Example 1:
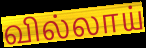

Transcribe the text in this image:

வில்லாய்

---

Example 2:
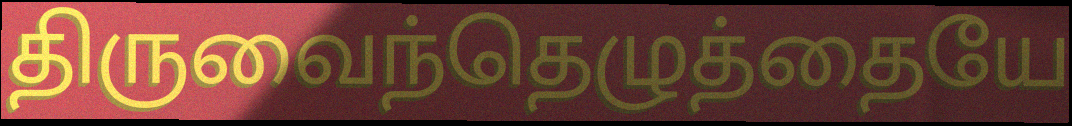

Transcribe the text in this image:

திருவைந்தெழுத்தையே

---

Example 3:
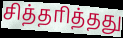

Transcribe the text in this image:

சித்தரித்தது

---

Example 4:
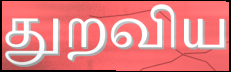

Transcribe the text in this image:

துறவிய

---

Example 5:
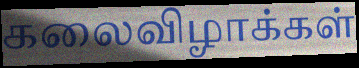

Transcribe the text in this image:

கலைவிழாக்கள்